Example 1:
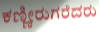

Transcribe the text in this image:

ಕಣ್ಣೀರುಗರೆದರು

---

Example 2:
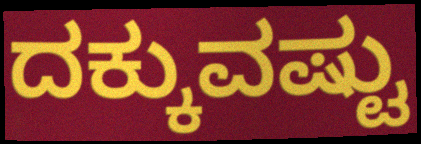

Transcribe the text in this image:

ದಕ್ಕುವಷ್ಟು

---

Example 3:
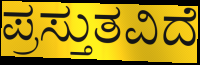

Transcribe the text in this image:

ಪ್ರಸ್ತುತವಿದೆ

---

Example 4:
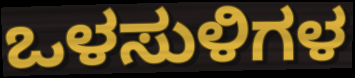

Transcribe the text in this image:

ಒಳಸುಳಿಗಳ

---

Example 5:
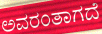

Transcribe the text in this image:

ಅವರಂತಾಗದೆ